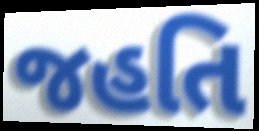
જહતિ